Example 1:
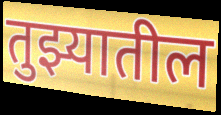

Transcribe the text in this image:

तुझ्यातील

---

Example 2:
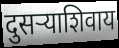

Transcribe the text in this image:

दुसऱ्याशिवाय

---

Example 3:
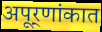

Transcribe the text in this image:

अपूर्णांकात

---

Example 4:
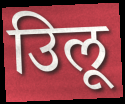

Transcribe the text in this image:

उिलू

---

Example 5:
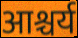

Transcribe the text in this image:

आश्चर्य